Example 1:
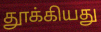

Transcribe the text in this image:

தூக்கியது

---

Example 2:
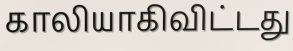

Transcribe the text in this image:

காலியாகிவிட்டது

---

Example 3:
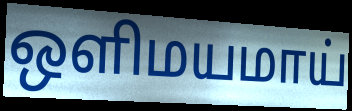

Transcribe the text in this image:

ஒளிமயமாய்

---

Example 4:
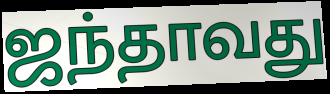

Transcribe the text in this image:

ஜந்தாவது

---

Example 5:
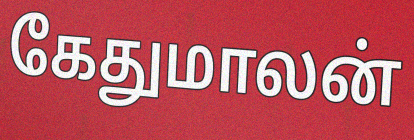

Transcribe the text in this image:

கேதுமாலன்